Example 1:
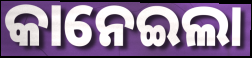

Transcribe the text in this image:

କାନେଇଲା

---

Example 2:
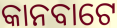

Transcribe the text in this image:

କାନବାଟେ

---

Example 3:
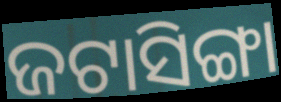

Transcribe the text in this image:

ଜଟାସିଙ୍ଗା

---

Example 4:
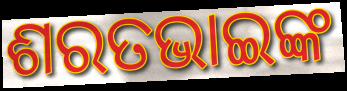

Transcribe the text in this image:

ଶରତଭାଇଙ୍କ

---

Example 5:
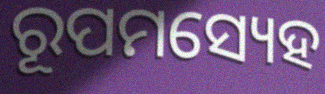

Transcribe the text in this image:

ରୂପମସ୍ୟେହ